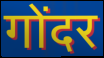
गोंदर